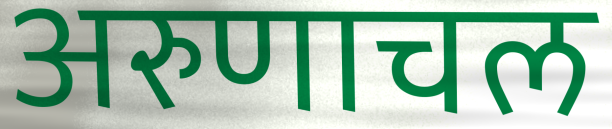
अरुणाचल